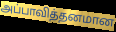
அப்பாவித்தனமான